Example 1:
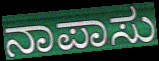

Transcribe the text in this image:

ನಾಪಾಸು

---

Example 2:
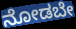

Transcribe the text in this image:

ನೋಡಬೇ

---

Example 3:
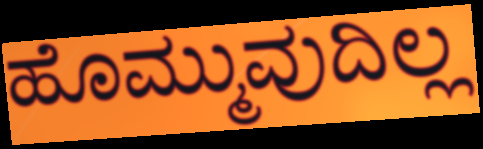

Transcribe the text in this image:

ಹೊಮ್ಮುವುದಿಲ್ಲ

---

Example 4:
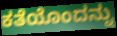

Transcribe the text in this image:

ಕತೆಯೊಂದನ್ನು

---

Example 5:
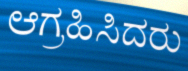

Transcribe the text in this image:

ಆಗ್ರಹಿಸಿದರು